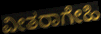
ವೀತರಾಗೇಹಿ